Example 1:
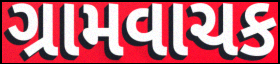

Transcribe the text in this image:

ગ્રામવાચક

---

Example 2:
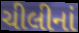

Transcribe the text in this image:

ચીલીનાં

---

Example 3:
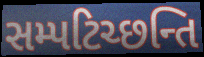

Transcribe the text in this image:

સમ્પટિચ્છન્તિ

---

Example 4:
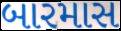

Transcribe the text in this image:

બારમાસ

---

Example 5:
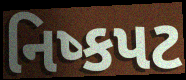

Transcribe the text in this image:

નિષ્કપટ